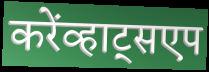
करेंव्हाट्सएप